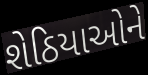
શેઠિયાઓને